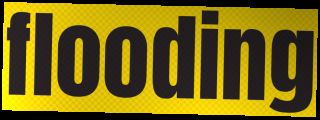
flooding